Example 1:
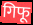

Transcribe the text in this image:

गिफू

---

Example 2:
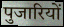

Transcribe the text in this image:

पुजारियों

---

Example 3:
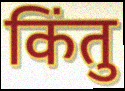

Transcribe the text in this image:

किंतु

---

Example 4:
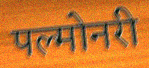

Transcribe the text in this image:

पल्मोनरी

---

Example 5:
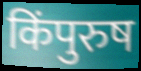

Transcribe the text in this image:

किंपुरुष